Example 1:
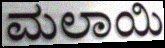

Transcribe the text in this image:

ಮಲಾಯಿ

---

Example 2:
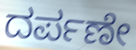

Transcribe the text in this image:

ದರ್ಪಣೇ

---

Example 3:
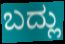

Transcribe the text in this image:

ಬದ್ಲು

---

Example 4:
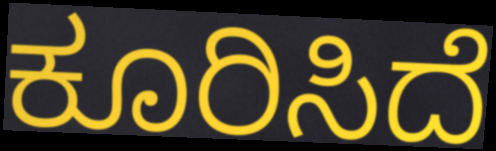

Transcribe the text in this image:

ಕೂರಿಸಿದೆ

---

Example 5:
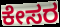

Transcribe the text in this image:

ಕೇಸರ